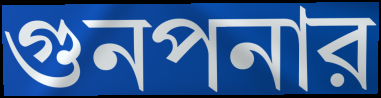
গুনপনার